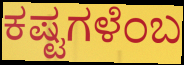
ಕಷ್ಟಗಳೆಂಬ